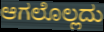
ಆಗಲೊಲ್ಲದು